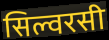
सिल्वरसी